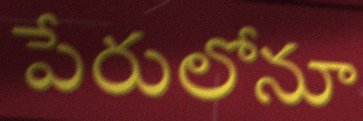
పేరులోనూ